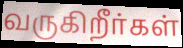
வருகிறீர்கள்